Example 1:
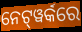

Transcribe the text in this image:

ନେଟ୍‍ୱର୍କରେ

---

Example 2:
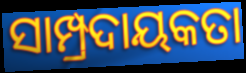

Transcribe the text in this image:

ସାମ୍ପ୍ରଦାୟକତା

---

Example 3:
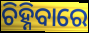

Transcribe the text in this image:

ଚିହ୍ନିବାରେ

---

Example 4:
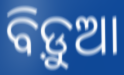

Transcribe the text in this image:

ବିଡ଼ୁଆ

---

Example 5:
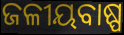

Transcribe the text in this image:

ଜଳୀୟବାଷ୍ପ